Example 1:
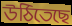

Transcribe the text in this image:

উঠিতেছে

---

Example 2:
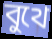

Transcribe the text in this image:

বুথে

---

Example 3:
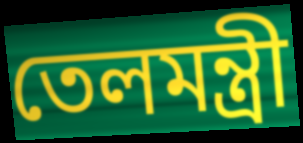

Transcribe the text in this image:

তেলমন্ত্রী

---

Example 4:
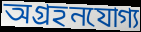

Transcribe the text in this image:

অগ্রহনযোগ্য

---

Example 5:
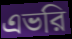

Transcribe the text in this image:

এভরি